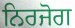
ਨਿਰਜੋਗ